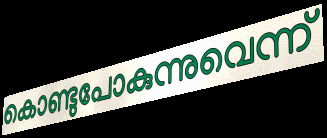
കൊണ്ടുപോകുന്നുവെന്ന്